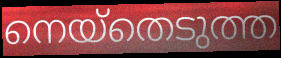
നെയ്തെടുത്ത